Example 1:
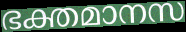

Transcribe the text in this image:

ഭക്തമാനസ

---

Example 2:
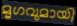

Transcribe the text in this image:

മൃഗവുമായി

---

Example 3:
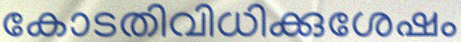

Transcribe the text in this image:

കോടതിവിധിക്കുശേഷം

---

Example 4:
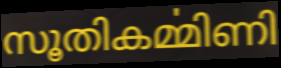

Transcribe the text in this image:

സൂതികൎമ്മിണി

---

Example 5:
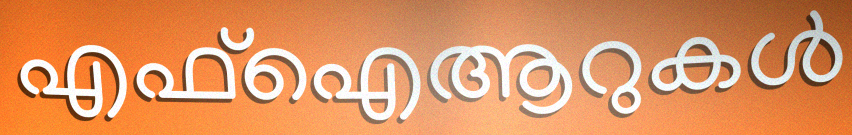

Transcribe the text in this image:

എഫ്ഐആറുകൾ